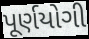
પૂર્ણયોગી